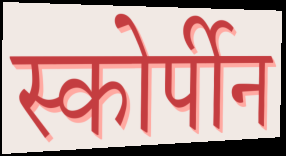
स्कोर्पीन